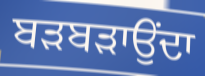
ਬੜਬੜਾਉਂਦਾ